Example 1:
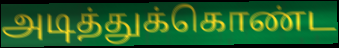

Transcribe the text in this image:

அடித்துக்கொண்ட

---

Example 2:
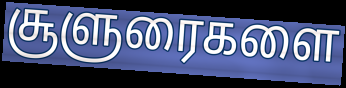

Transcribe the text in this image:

சூளுரைகளை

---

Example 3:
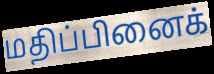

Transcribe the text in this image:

மதிப்பினைக்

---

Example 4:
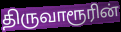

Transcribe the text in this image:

திருவாரூரின்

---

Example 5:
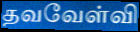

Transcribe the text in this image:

தவவேள்வி